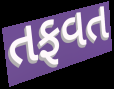
તફવત